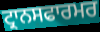
ਟ੍ਰਾਨਸਫਾਰਮਰ